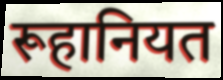
रूहानियत